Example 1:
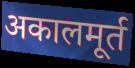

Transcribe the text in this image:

अकालमूर्त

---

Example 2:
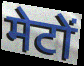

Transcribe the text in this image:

मेटों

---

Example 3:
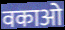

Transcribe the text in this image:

वकाओ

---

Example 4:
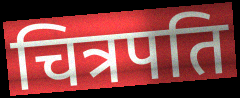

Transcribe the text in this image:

चित्रपति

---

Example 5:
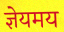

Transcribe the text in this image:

ज्ञेयमय